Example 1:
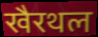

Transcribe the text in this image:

खैरथल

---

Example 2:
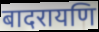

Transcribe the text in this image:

बादरायणि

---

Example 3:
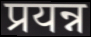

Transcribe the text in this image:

प्रयन्न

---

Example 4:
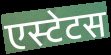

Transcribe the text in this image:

एस्टेटस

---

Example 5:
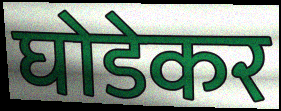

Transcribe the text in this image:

घोडेकर